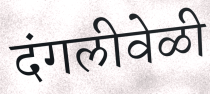
दंगलीवेळी